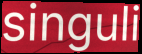
singuli